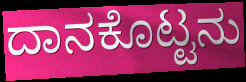
ದಾನಕೊಟ್ಟನು